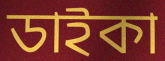
ডাইকা